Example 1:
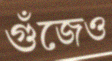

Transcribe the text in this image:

গুঁজেও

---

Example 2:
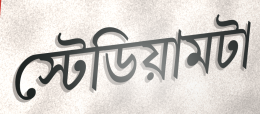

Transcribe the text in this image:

স্টেডিয়ামটা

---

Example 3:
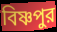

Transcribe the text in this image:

বিষ্ণপুর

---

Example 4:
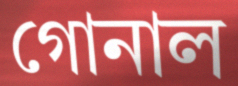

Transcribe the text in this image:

গোনাল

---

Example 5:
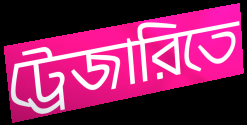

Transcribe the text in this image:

ট্রেজারিতে